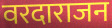
वरदाराजन